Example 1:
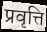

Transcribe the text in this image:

प्रवृत्ति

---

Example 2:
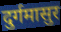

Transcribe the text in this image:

दुर्गमासुर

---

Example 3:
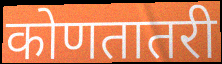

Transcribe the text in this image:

कोणतातरी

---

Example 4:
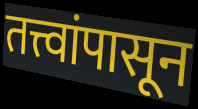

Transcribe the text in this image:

तत्त्वांपासून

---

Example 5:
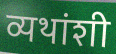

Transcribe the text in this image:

व्यथांशी